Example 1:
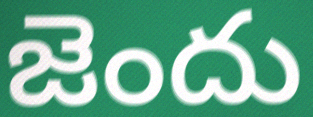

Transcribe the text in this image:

జెందు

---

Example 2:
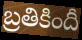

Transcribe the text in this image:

బ్రతికిందీ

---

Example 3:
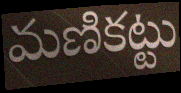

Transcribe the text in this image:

మణికట్టు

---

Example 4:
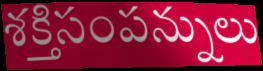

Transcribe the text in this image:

శక్తిసంపన్నులు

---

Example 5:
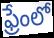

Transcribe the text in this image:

ఫ్రేంలో